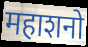
महाशनो